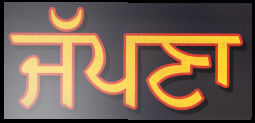
ਜੱਪਣਾ